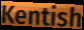
Kentish